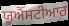
ਯੂਐੱਸਟੀਆਰ